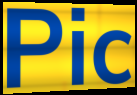
Pic